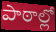
పాఠాల్లో